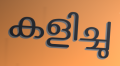
കളിച്ചു